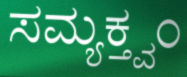
ಸಮ್ಯಕ್ತ್ವಂ